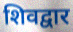
शिवद्वार